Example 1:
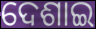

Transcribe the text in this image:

ଦେଶାଇ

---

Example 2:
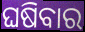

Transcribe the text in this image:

ଘଷିବାର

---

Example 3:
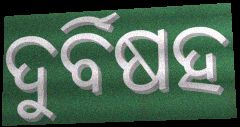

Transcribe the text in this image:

ଦୁର୍ବିଷହ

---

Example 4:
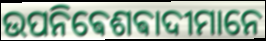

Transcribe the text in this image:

ଉପନିଵେଶଵାଦୀମାନେ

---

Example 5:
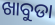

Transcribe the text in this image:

ଖାବୁଡା